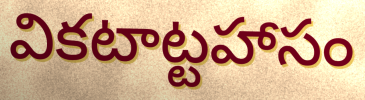
వికటాట్టహాసం